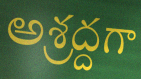
అశ్రద్దగా